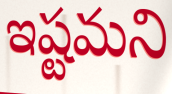
ఇష్టమని